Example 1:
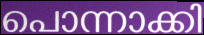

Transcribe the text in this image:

പൊന്നാക്കി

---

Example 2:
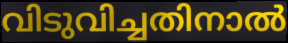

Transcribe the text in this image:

വിടുവിച്ചതിനാൽ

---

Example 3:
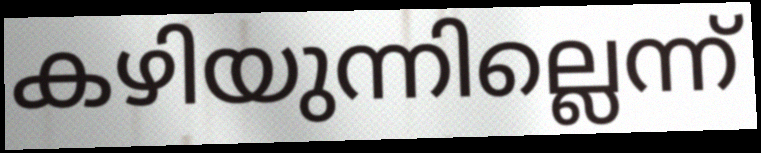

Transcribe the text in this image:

കഴിയുന്നില്ലെന്ന്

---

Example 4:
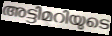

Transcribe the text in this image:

അട്ടിമറിയുടെ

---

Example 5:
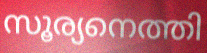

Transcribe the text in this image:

സൂര്യനെത്തി